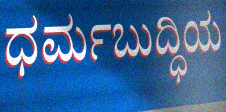
ಧರ್ಮಬುದ್ಧಿಯ